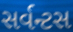
સર્વન્ટસ